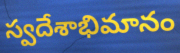
స్వదేశాభిమానం